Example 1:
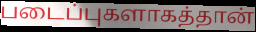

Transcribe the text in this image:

படைப்புகளாகத்தான்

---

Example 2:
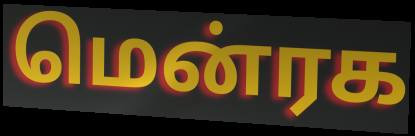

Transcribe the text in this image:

மென்ரக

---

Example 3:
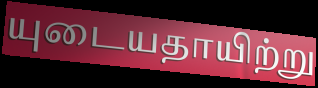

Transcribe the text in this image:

யுடையதாயிற்று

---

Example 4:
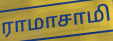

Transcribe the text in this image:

ராமாசாமி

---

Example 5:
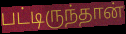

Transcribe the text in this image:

பட்டிருந்தான்